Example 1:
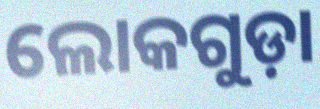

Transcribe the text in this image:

ଲୋକଗୁଡ଼ା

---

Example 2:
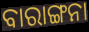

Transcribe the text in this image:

ବାରାଙ୍ଗନା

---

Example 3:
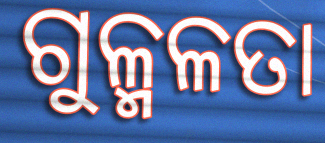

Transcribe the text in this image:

ଗୁଳ୍ମଳତା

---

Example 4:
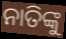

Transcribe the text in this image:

ନାତିଙ୍କୁ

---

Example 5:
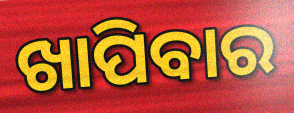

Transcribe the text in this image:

ଖାପିବାର